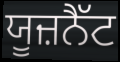
ਯੂਜ਼ਨੈੱਟ